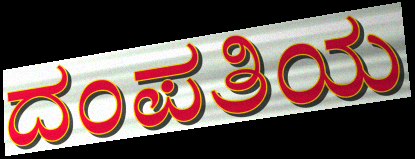
ದಂಪತಿಯ